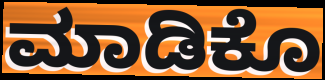
ಮಾಡಿಕೊ